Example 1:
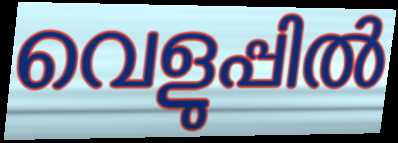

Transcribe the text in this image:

വെളുപ്പിൽ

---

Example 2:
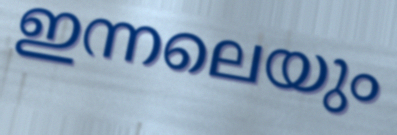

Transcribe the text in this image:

ഇന്നലെയും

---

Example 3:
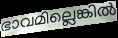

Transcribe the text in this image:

ഭാവമില്ലെങ്കിൽ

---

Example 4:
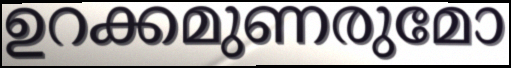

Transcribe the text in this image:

ഉറക്കമുണരുമോ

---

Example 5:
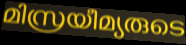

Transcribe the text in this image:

മിസ്രയീമ്യരുടെ